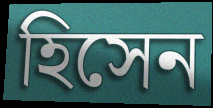
হিসেন